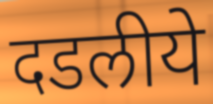
दडलीये